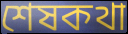
শেষকথা